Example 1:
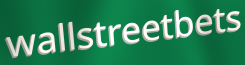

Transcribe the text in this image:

wallstreetbets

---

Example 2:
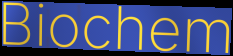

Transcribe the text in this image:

Biochem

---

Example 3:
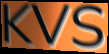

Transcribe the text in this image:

KVS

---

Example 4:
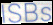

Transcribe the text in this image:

ISBs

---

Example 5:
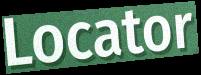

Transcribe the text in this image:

Locator